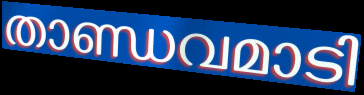
താണ്ഡവമാടി